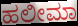
ಹಲೀಮಾ